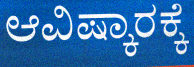
ಆವಿಷ್ಕಾರಕ್ಕೆ